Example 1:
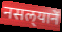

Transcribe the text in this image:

नसल्यानें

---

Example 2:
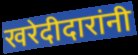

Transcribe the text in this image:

खरेदीदारांनी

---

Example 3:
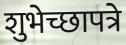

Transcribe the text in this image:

शुभेच्छापत्रे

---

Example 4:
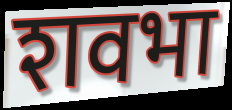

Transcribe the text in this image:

शवभा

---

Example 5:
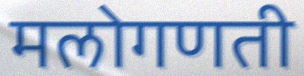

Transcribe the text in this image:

मलोगणती